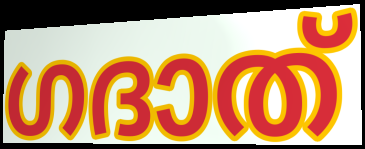
ഗദാത്